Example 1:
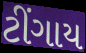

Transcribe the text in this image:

ટીંગાય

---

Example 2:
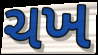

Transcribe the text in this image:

ચખ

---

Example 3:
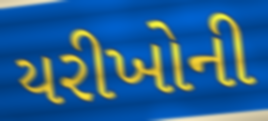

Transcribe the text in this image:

યરીખોની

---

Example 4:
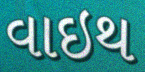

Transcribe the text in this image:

વાઇથ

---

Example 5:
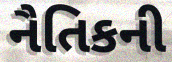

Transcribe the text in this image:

નૈતિકની